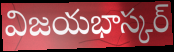
విజయభాస్కర్